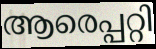
ആരെപ്പറ്റി